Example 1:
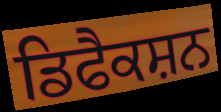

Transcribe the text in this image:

ਡਿਫੈਕਸ਼ਨ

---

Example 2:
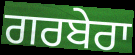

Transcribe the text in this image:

ਗਰਬੇਰਾ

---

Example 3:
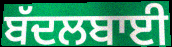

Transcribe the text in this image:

ਬੱਦਲਬਾਈ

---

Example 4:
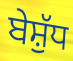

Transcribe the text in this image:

ਬੇਸ਼ੁੱਧ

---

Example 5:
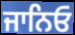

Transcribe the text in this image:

ਜਾਨਿਓ